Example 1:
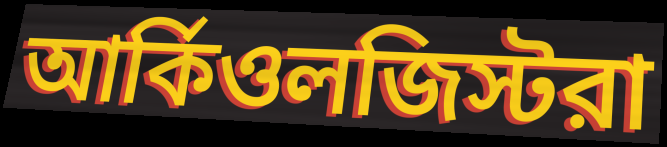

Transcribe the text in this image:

আর্কিওলজিস্টরা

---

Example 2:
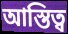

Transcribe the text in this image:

আস্তিত্ব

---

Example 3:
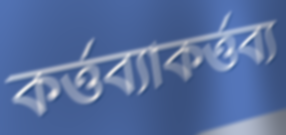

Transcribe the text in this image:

কর্ত্তব্যাকর্ত্তব্য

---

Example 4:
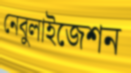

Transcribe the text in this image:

নেবুলাইজেশন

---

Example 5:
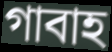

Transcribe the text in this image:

গাবাহ